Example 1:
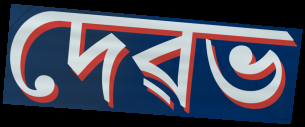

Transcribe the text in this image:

দেৱভ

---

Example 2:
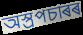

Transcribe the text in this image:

অস্ত্ৰপচাৰৰ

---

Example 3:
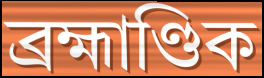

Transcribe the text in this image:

ব্ৰহ্মাণ্ডিক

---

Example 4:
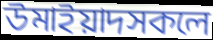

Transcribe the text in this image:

উমাইয়াদসকলে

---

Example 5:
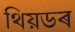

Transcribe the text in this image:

থিয়ডৰ